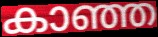
കാഞ്ഞ